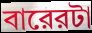
বারেরটা